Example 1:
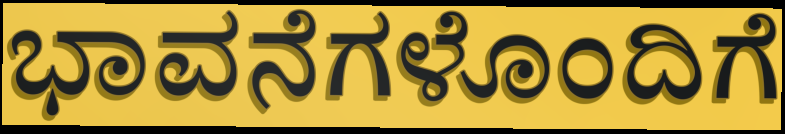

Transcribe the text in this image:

ಭಾವನೆಗಳೊಂದಿಗೆ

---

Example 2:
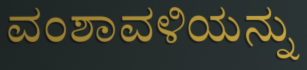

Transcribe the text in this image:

ವಂಶಾವಳಿಯನ್ನು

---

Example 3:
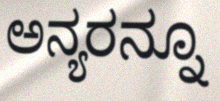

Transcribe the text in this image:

ಅನ್ಯರನ್ನೂ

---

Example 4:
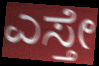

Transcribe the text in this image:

ಎಸ್ತೇ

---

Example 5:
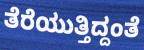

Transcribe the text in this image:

ತೆರೆಯುತ್ತಿದ್ದಂತೆ